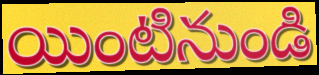
యింటినుండి